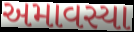
અમાવસ્યા